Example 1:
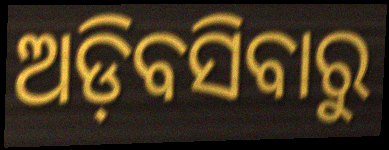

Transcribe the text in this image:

ଅଡ଼ିବସିବାରୁ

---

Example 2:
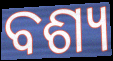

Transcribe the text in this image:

ବଶ୍ୟ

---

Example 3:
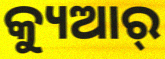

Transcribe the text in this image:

କ୍ୟୁଆର୍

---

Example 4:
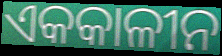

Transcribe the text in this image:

ଏକକାଳୀନ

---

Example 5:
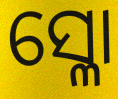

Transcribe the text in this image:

ସ୍ଳୋ